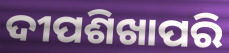
ଦୀପଶିଖାପରି